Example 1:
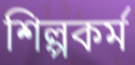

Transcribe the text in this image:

শিল্পকর্ম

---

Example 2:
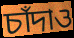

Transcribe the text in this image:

চাঁদাও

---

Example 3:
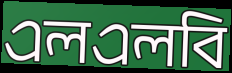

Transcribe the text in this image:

এলএলবি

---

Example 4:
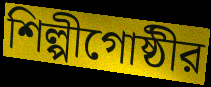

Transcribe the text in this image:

শিল্পীগোষ্ঠীর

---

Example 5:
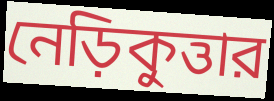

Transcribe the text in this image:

নেড়িকুত্তার